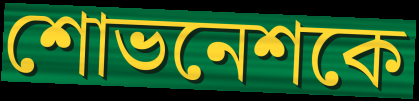
শোভনেশকে